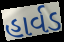
હાર્વડ